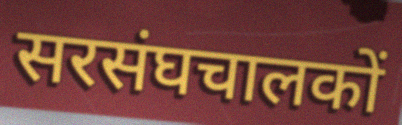
सरसंघचालकों